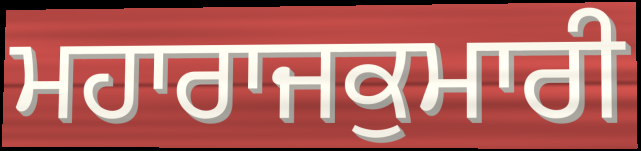
ਮਹਾਰਾਜਕੁਮਾਰੀ